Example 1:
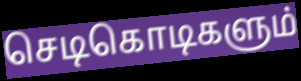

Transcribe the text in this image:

செடிகொடிகளும்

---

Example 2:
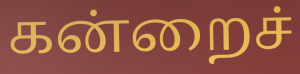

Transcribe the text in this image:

கன்றைச்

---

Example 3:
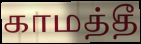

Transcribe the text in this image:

காமத்தீ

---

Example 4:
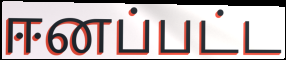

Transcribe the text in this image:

ஈனப்பட்ட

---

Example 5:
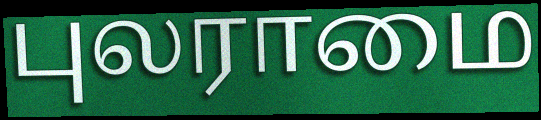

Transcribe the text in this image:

புலராமை